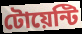
টোয়েন্টি